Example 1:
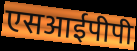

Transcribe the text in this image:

एसआईपीपी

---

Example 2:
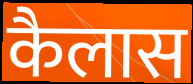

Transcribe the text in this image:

कैलास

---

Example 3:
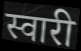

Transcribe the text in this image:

स्वारी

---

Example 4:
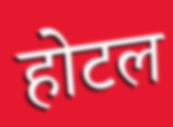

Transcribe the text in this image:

होटल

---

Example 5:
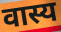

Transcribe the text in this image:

वास्य